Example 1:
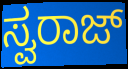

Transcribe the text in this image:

ಸ್ವರಾಜ್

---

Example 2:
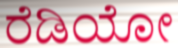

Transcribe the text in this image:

ರೆಡಿಯೋ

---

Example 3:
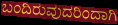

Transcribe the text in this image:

ಬಂದಿರುವುದರಿಂದಾಗಿ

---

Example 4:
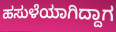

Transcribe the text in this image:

ಹಸುಳೆಯಾಗಿದ್ದಾಗ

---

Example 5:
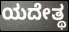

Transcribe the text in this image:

ಯದೇತ್ಥ